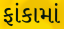
ફાંકામાં